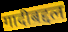
गादीबद्दल